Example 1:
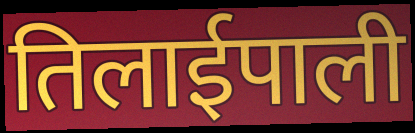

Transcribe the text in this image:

तिलाईपाली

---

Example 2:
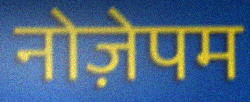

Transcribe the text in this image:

नोज़ेपम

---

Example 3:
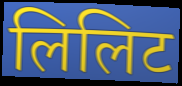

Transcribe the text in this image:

लिलिट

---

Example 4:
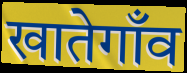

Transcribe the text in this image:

खातेगाँव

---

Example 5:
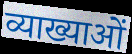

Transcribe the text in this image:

व्याख्याओं